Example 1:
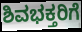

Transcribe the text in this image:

ಶಿವಭಕ್ತರಿಗೆ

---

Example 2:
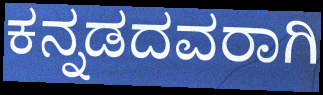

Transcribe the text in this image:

ಕನ್ನಡದವರಾಗಿ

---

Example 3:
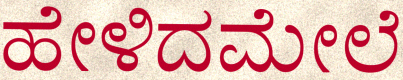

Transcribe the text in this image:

ಹೇಳಿದಮೇಲೆ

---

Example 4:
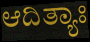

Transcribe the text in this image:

ಆದಿತ್ಯಾಃ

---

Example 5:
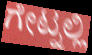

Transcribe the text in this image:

ಗೇಟ್ನಲ್ಲಿ